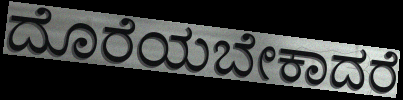
ದೊರೆಯಬೇಕಾದರೆ